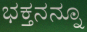
ಭಕ್ತನನ್ನೂ